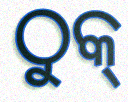
ଠୁକ୍